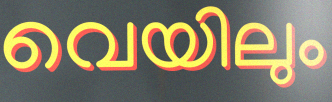
വെയിലും